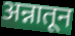
अन्नातून